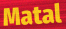
Matal